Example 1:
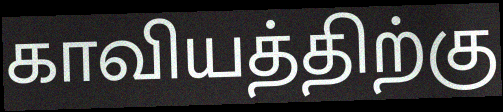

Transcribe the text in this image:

காவியத்திற்கு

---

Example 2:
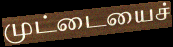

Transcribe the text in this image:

முட்டையைச்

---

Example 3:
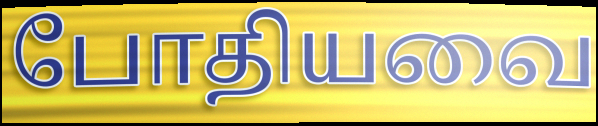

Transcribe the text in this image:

போதியவை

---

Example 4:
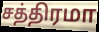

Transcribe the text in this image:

சத்திரமா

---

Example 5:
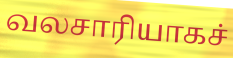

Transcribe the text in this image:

வலசாரியாகச்